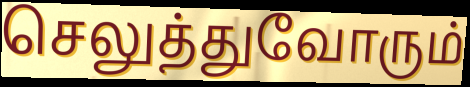
செலுத்துவோரும்